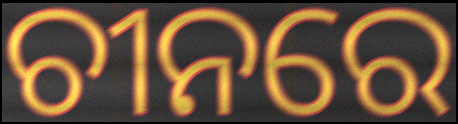
ଚୀନରେ